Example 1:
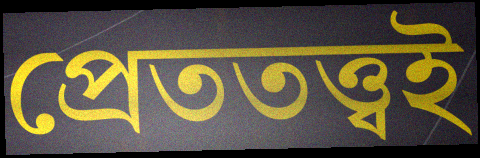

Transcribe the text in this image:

প্রেততত্ত্বই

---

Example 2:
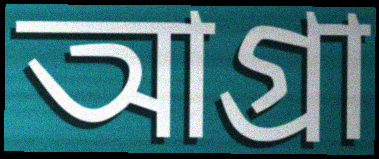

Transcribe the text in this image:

আগ্রা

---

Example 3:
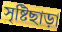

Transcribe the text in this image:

সৃষ্টিছাড়া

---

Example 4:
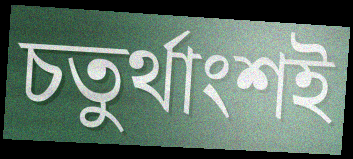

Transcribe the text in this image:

চতুর্থাংশই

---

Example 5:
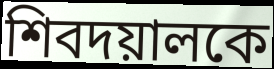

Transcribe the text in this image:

শিবদয়ালকে